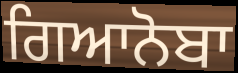
ਗਿਆਨੋਬਾ